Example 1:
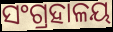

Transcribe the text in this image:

ସଂଗ୍ରହାଳୟ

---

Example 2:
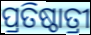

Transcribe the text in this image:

ପ୍ରତିଷ୍ଠାତ୍ରୀ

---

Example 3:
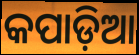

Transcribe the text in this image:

କପାଡ଼ିଆ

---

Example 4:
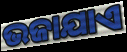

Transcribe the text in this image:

ଭଜାଯାଏ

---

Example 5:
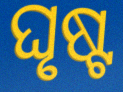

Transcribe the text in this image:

ଘୃଷ୍ଟ